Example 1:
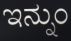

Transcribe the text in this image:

ಇನ್ನುಂ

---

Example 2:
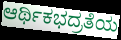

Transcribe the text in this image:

ಆರ್ಥಿಕಭದ್ರತೆಯ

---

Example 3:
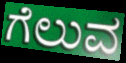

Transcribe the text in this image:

ಗೆಲುವ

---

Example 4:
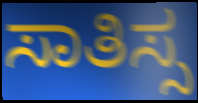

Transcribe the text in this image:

ಸಾತಿಸ್ಸ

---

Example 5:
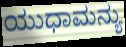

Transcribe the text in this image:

ಯುಧಾಮನ್ಯು